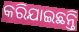
କରିଯାଇଛନ୍ତି